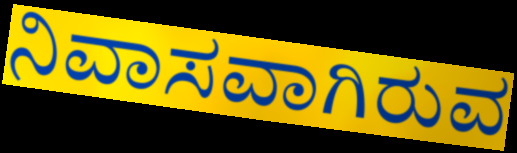
ನಿವಾಸವಾಗಿರುವ